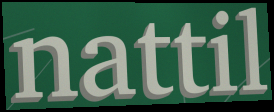
nattil